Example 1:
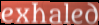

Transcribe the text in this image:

exhaled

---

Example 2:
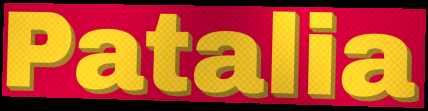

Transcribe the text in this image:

Patalia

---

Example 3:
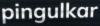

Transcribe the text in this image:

pingulkar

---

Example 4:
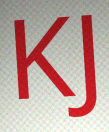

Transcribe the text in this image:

KJ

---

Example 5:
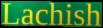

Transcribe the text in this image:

Lachish